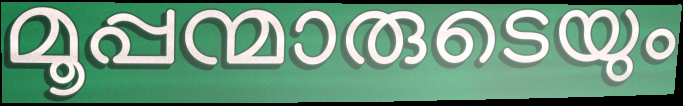
മൂപ്പന്മാരുടെയും